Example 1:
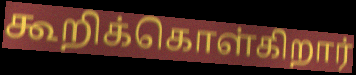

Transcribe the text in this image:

கூறிக்கொள்கிறார்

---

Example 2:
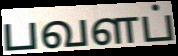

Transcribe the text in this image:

பவளப்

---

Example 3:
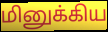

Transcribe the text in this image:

மினுக்கிய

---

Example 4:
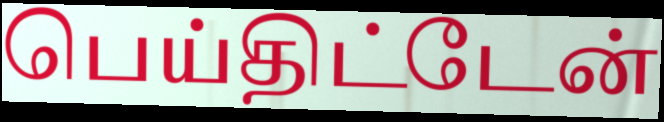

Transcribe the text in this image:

பெய்திட்டேன்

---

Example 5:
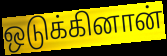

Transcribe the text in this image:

ஒடுக்கினான்